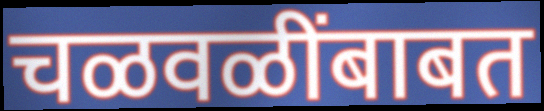
चळवळींबाबत